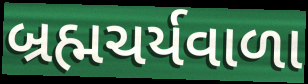
બ્રહ્મચર્યવાળા